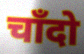
चाँदो